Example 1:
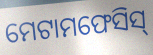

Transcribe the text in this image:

ମେଟାମଫେସିସ୍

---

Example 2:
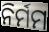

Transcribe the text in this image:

ନିର୍ମମ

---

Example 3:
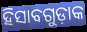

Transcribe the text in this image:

ହିସାବଗୁଡ଼ାକ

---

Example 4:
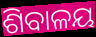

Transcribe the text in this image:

ଶିବାଳୟ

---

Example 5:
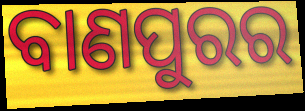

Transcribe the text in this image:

ବାଣପୁରର